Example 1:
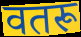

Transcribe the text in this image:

वतरू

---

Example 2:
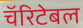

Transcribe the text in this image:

चॅरिटेबल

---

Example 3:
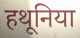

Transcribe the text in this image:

हथूनिया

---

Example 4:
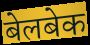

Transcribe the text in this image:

बेलबेक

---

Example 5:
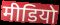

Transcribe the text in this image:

मीडियो